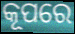
କୂପରେ